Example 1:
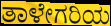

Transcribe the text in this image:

ತಾಳೇಗರಿಯ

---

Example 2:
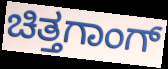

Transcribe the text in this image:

ಚಿತ್ತಗಾಂಗ್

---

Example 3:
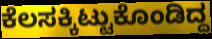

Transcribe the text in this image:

ಕೆಲಸಕ್ಕಿಟ್ಟುಕೊಂಡಿದ್ದ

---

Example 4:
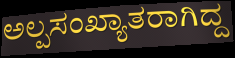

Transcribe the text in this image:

ಅಲ್ಪಸಂಖ್ಯಾತರಾಗಿದ್ದ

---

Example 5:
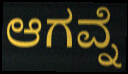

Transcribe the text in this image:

ಆಗವ್ನೆ